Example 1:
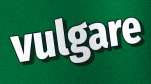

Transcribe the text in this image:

vulgare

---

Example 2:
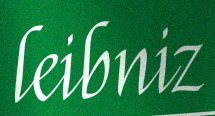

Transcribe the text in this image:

leibniz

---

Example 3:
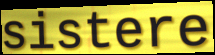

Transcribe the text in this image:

sistere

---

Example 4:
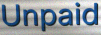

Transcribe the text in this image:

Unpaid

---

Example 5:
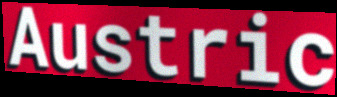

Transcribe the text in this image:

Austric